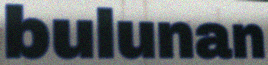
bulunan